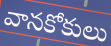
వానకోకులు